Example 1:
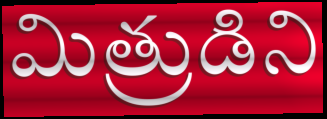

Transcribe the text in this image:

మిత్రుడిని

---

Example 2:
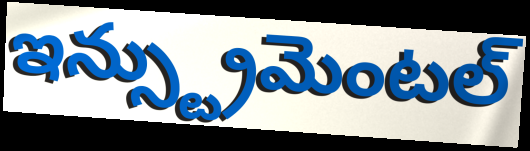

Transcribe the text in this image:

ఇన్స్ట్రుమెంటల్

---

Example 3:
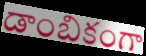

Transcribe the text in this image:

డాంబికంగా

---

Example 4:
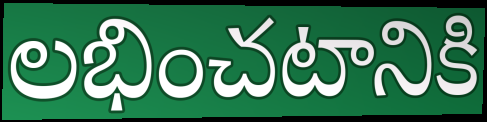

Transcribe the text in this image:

లభించటానికి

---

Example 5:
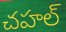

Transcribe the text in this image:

చహల్